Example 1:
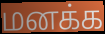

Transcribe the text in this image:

மனக்க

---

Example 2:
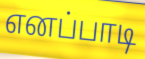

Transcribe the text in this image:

எனப்பாடி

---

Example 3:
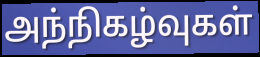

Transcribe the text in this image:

அந்நிகழ்வுகள்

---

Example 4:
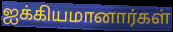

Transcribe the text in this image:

ஐக்கியமானார்கள்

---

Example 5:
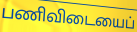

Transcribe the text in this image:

பணிவிடையைப்